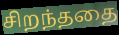
சிறந்ததை